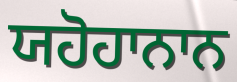
ਯਹੋਹਾਨਾਨ